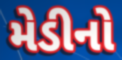
મેડીનો